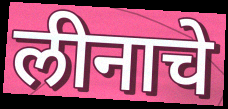
लीनाचे